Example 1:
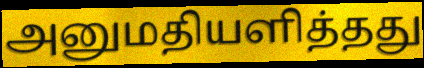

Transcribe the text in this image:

அனுமதியளித்தது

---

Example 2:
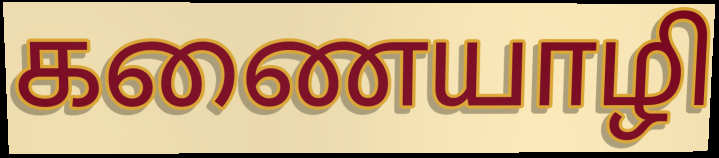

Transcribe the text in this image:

கணையாழி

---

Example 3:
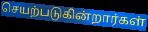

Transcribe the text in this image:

செயற்படுகின்றார்கள்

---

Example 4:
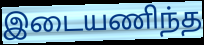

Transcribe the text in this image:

இடையணிந்த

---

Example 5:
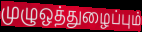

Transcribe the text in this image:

முழுஒத்துழைப்பும்